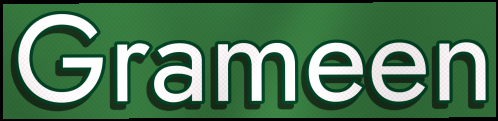
Grameen